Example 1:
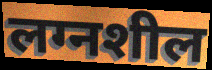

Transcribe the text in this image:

लग्नशील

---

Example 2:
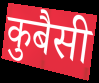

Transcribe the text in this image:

कुबैसी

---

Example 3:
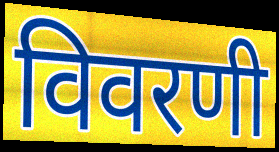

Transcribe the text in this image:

विवरणी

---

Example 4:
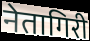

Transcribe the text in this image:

नेतागिरी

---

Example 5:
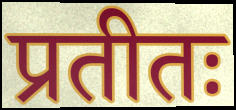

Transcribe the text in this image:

प्रतीतः